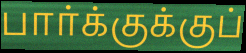
பார்க்குக்குப்